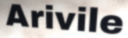
Arivile